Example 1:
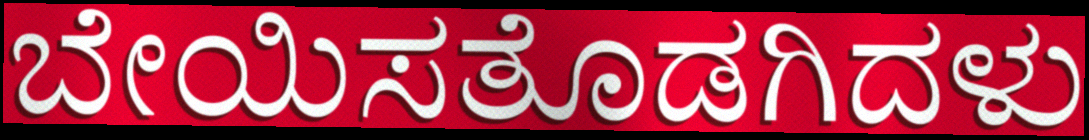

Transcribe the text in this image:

ಬೇಯಿಸತೊಡಗಿದಳು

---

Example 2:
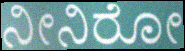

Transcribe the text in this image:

ನೀನಿರೋ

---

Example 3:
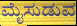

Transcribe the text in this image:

ಮೈಸುಡುವ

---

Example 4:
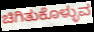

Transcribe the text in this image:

ಚಿಗಿತುಕೊಳ್ಳುವ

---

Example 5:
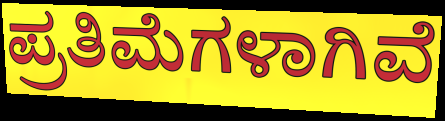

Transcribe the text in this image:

ಪ್ರತಿಮೆಗಳಾಗಿವೆ